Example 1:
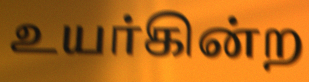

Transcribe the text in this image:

உயர்கின்ற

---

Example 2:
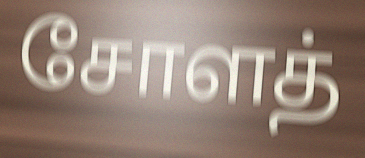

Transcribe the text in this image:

சோளத்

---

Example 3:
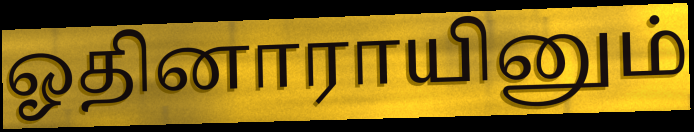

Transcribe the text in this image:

ஓதினாராயினும்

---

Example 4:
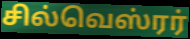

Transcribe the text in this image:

சில்வெஸ்ரர்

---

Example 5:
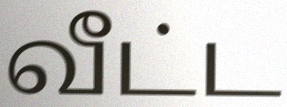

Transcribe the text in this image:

வீட்ட